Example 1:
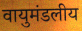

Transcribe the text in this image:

वायुमंडलीय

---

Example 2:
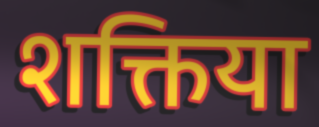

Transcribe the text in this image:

शक्तिया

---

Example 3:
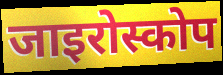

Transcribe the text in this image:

जाइरोस्कोप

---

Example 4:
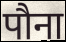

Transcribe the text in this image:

पौना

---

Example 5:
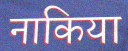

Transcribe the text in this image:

नाकिया